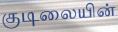
குடிலையின்